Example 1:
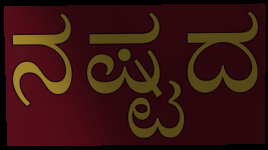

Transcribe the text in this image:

ನಷ್ಟದ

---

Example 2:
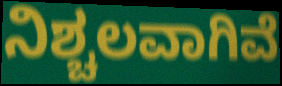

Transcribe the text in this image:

ನಿಶ್ಚಲವಾಗಿವೆ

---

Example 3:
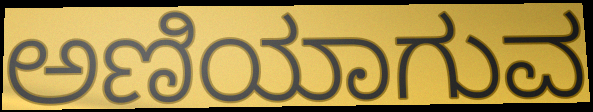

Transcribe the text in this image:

ಅಣಿಯಾಗುವ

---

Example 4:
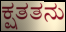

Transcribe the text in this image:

ಕ್ಷತತನು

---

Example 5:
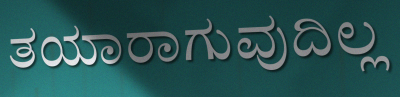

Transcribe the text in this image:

ತಯಾರಾಗುವುದಿಲ್ಲ